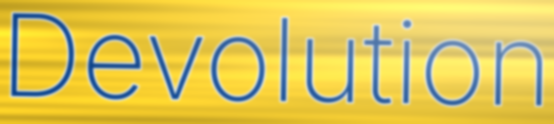
Devolution